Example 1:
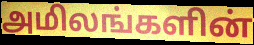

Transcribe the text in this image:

அமிலங்களின்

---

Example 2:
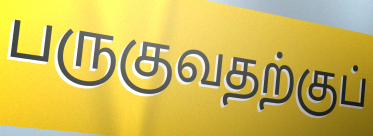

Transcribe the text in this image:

பருகுவதற்குப்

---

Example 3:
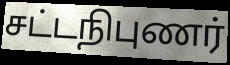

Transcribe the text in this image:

சட்டநிபுணர்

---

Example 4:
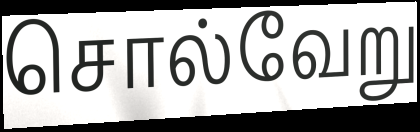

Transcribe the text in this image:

சொல்வேறு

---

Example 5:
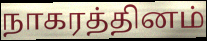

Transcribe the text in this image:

நாகரத்தினம்